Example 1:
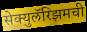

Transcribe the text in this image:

सेक्युलॅरिझमची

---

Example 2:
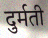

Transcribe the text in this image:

दुर्मती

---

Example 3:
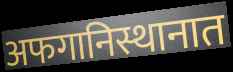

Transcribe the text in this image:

अफगानिस्थानात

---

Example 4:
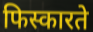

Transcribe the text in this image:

फिस्कारते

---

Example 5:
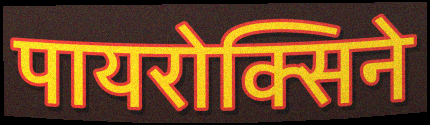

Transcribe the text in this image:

पायरोक्सिने